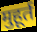
मुहूर्त